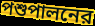
পশুপালনের